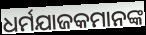
ଧର୍ମଯାଜକମାନଙ୍କ